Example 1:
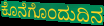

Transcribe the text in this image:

ಕೊನೆಗೊಂದುದಿನ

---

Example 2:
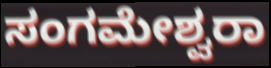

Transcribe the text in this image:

ಸಂಗಮೇಶ್ವರಾ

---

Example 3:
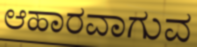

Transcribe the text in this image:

ಆಹಾರವಾಗುವ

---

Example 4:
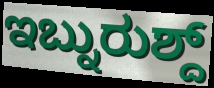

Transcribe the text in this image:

ಇಬ್ನುರುಶ್ದ್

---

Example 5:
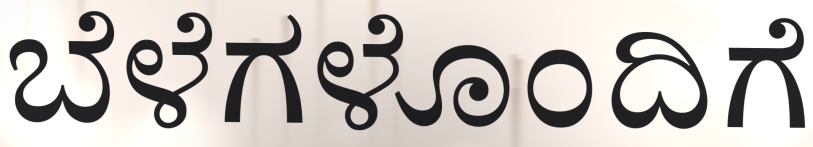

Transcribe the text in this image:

ಬೆಳೆಗಳೊಂದಿಗೆ